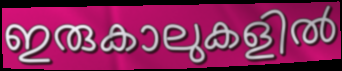
ഇരുകാലുകളിൽ